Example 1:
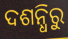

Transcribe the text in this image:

ଦଶନ୍ଧିରୁ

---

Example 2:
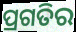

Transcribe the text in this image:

ପ୍ରଗତିର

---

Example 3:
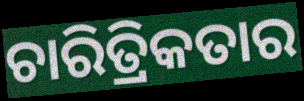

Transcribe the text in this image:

ଚାରିତ୍ରିକତାର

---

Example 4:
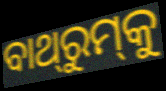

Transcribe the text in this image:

ବାଥ୍‌ରୁମ୍‌କୁ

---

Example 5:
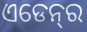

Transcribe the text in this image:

ଏଡେନ୍‍ର